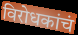
विरोधकांचं